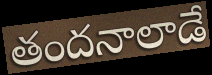
తందనాలాడే